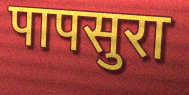
पापसुरा